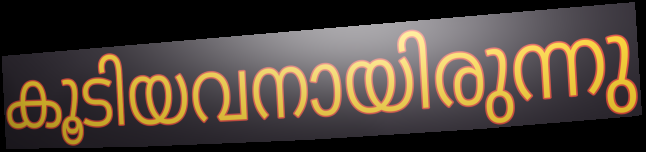
കൂടിയവനായിരുന്നു